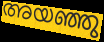
അയഞ്ഞു